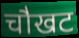
चौखट